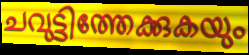
ചവുട്ടിത്തേക്കുകയും